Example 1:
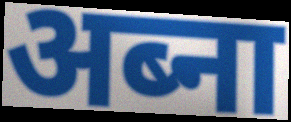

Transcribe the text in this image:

अब्ना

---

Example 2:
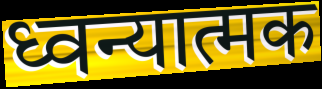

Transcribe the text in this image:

ध्वन्यात्मक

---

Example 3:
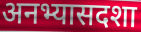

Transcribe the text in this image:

अनभ्यासदशा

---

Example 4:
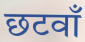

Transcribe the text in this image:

छटवाँ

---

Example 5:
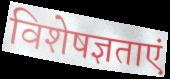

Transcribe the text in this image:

विशेषज्ञताएं